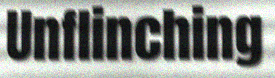
Unflinching